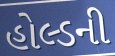
હોલ્ડની